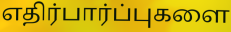
எதிர்பார்ப்புகளை